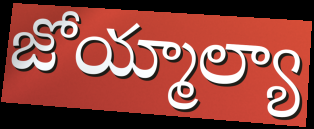
జోయ్మాల్యా